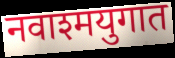
नवाश्मयुगात